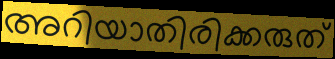
അറിയാതിരിക്കരുത്